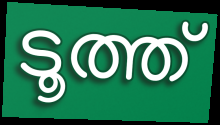
ടൂത്ത്